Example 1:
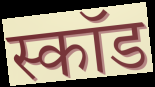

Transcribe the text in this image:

स्कॉड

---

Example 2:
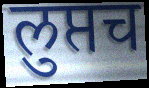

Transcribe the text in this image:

लुप्तच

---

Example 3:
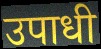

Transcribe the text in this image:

उपाधी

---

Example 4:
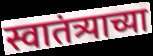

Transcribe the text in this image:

स्वातंत्र्याच्या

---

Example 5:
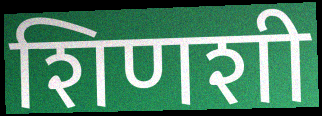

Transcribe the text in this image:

शिणशी